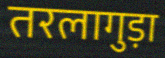
तरलागुड़ा